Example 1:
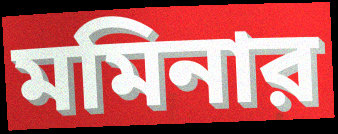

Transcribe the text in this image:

মমিনার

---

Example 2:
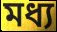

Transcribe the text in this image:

মধ্য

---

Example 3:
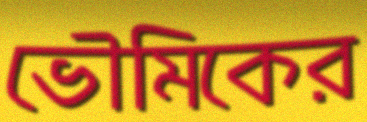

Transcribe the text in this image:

ভৌমিকের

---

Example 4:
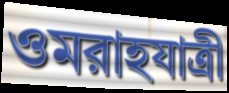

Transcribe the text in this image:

ওমরাহযাত্রী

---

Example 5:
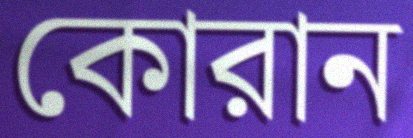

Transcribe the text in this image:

কোরান